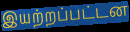
இயற்றப்பட்டன